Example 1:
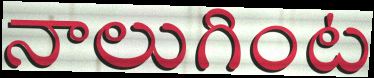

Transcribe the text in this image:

నాలుగింట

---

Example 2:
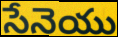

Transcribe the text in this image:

సేనెయు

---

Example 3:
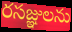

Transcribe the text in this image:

రసజ్ఞులను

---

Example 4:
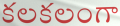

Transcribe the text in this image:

కలకలంగా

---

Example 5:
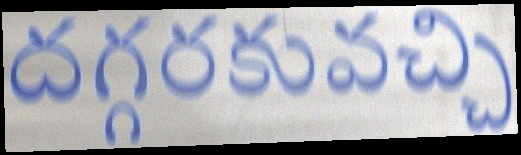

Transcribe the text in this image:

దగ్గరకువచ్చి